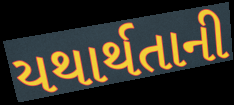
યથાર્થતાની